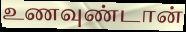
உணவுண்டான்